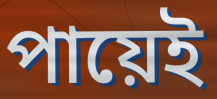
পায়েই